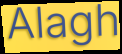
Alagh